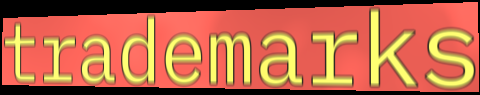
trademarks